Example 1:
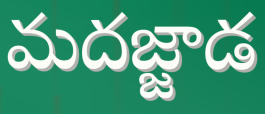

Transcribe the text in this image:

మదజ్జాడ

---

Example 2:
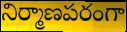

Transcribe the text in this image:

నిర్మాణపరంగా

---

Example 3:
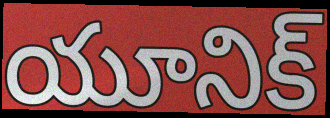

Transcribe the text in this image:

యూనిక్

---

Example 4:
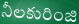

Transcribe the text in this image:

నీలకురింజి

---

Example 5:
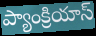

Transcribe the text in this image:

ప్యాంక్రియాస్